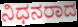
ನಿಧನರಾದ